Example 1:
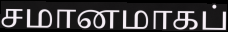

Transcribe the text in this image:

சமானமாகப்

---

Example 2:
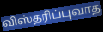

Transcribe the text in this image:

விஸ்தரிப்புவாத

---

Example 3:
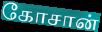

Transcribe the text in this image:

கோசான்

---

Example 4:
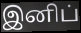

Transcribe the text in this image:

இனிப்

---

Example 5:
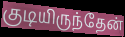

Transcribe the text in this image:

குடியிருந்தேன்